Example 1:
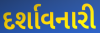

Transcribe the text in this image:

દર્શાવનારી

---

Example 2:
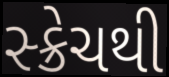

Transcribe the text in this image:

સ્ક્રેચથી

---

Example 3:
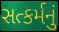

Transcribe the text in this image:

સત્કર્મનું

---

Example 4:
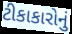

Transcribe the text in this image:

ટીકાકારોનું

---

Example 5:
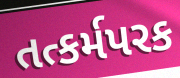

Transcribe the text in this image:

તત્કર્મપરક